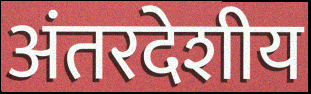
अंतरदेशीय